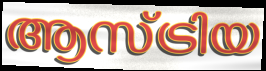
ആസ്ട്രിയ